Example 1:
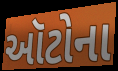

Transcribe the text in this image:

ઑટોના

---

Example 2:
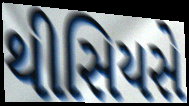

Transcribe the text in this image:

થીસિયસે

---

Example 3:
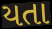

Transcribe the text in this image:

યતા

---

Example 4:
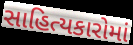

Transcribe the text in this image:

સાહિત્યકારોમાં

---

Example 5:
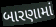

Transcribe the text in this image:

બારણામાં